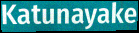
Katunayake